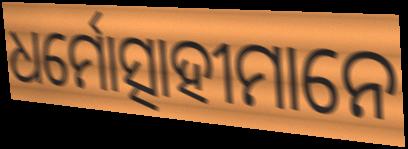
ଧର୍ମୋତ୍ସାହୀମାନେ